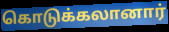
கொடுக்கலானார்